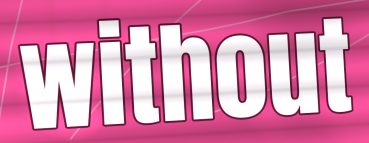
without